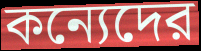
কন্যেদের